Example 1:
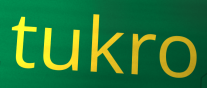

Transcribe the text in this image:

tukro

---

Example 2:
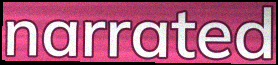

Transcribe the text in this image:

narrated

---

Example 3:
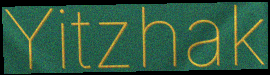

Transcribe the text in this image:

Yitzhak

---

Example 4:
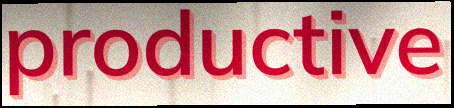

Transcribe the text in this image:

productive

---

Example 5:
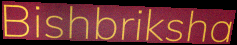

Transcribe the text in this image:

Bishbriksha